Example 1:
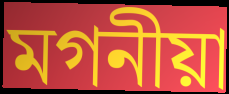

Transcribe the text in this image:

মগনীয়া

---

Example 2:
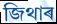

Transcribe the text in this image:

জিথাৰ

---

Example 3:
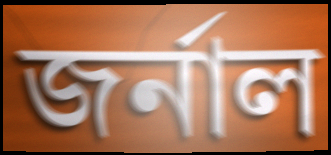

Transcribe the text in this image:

জৰ্নাল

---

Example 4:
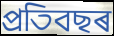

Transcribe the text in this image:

প্ৰতিবছৰ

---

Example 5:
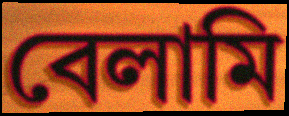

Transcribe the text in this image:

বেলামি